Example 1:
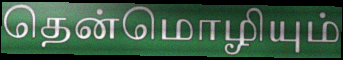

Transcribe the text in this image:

தென்மொழியும்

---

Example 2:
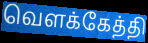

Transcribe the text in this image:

வெளக்கேத்தி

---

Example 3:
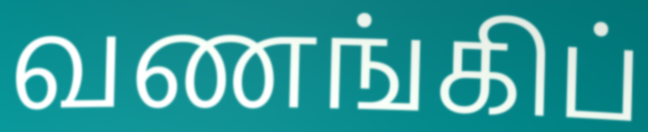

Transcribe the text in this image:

வணங்கிப்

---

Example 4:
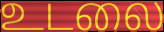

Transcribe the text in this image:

உடலை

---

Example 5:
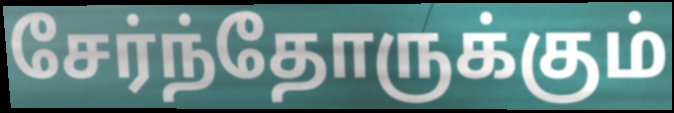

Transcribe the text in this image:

சேர்ந்தோருக்கும்